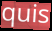
quis